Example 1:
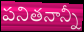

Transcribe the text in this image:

పనితనాన్నీ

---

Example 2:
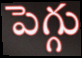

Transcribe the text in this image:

పెగ్గు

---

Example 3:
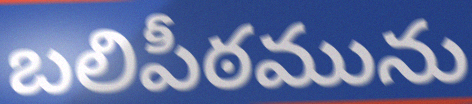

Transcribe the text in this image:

బలిపీఠమును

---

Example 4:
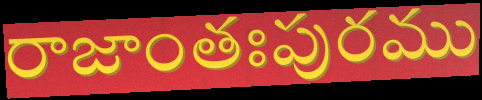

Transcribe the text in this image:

రాజాంతఃపురము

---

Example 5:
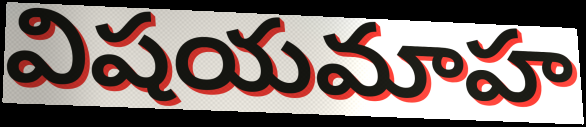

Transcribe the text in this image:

విషయమాహ